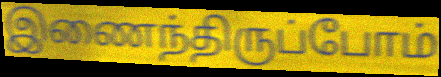
இணைந்திருப்போம்